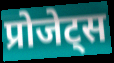
प्रोजेट्स